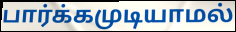
பார்க்கமுடியாமல்